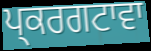
ਪ੍ਕਰਗਟਾਵਾ